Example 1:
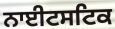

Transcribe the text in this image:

ਨਾਈਟਸਟਿਕ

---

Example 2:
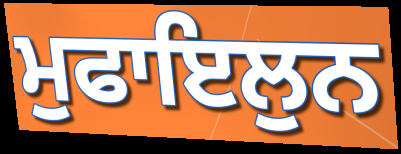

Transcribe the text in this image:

ਮੁਫਾਇਲੁਨ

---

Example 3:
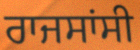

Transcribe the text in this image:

ਰਾਜਸਾਂਸੀ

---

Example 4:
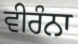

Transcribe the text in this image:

ਵੀਰੰਨਾ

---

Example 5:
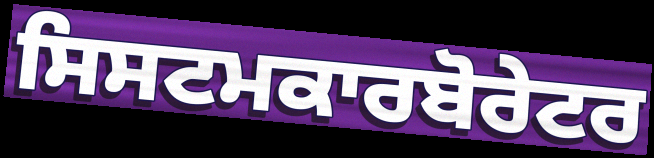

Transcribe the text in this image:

ਸਿਸਟਮਕਾਰਬੋਰੇਟਰ